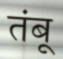
तंबू